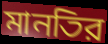
মানতির